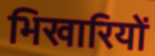
भिखारियों